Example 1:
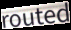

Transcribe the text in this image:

routed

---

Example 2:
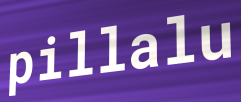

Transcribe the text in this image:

pillalu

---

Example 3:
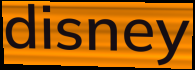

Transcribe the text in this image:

disney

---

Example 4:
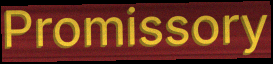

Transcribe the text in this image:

Promissory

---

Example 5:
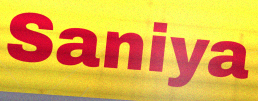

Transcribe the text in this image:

Saniya